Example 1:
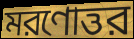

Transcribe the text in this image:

মরণোত্তর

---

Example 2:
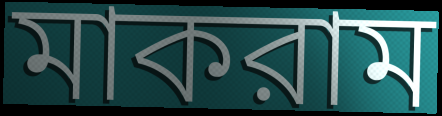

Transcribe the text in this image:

মাকরাম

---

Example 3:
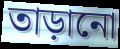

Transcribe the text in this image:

তাড়ানো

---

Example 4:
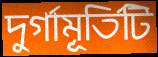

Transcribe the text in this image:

দুর্গামূর্তিটি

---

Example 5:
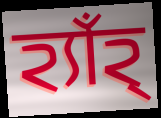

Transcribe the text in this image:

হ্যাঁহ্